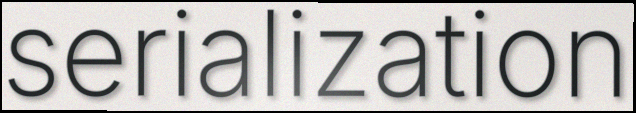
serialization